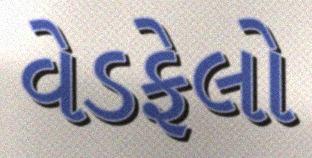
વેડફેલો